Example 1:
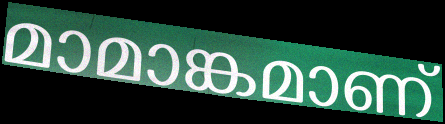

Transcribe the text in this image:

മാമാങ്കമാണ്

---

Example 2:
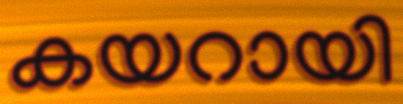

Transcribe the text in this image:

കയറായി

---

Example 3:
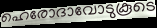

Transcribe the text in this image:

ഹെരോദാവോടുകൂടെ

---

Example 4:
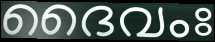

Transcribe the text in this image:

ദൈവംഃ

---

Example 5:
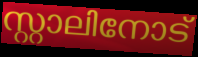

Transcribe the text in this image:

സ്റ്റാലിനോട്